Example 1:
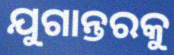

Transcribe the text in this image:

ଯୁଗାନ୍ତରକୁ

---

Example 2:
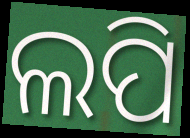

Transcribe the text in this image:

ଲପି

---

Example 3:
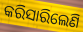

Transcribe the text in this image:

କରିସାରିଲେଣି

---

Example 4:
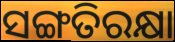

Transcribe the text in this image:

ସଙ୍ଗତିରକ୍ଷା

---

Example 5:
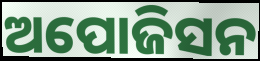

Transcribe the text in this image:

ଅପୋଜିସନ